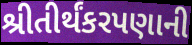
શ્રીતીર્થંકરપણાની